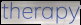
therapy